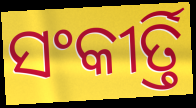
ସଂକୀର୍ତ୍ତି